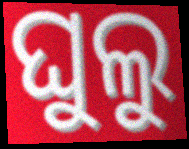
ଘୁଲୁ